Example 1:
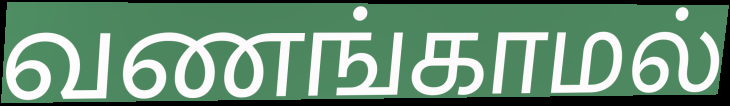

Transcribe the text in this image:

வணங்காமல்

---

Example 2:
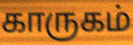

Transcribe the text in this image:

காருகம்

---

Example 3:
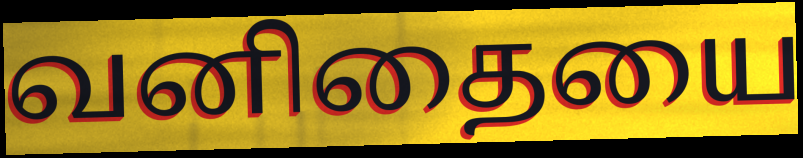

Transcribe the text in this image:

வனிதையை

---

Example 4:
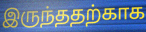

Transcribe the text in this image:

இருந்ததற்காக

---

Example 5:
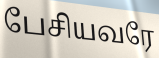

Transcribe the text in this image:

பேசியவரே